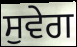
ਸੁਵੇਗ